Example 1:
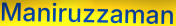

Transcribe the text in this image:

Maniruzzaman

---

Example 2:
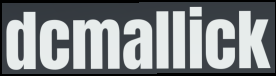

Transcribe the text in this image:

dcmallick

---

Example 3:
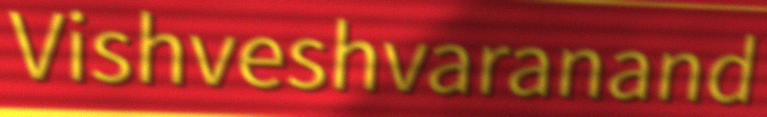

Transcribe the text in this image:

Vishveshvaranand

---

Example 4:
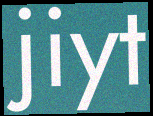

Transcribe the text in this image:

jiyt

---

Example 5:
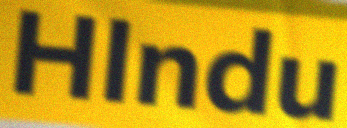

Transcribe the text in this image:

HIndu